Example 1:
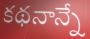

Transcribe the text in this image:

కథనాన్నే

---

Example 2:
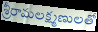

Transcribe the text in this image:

శ్రీరామలక్ష్మణులతో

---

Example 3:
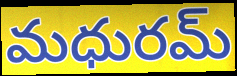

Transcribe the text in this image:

మధురమ్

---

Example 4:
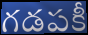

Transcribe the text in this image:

గడపకీ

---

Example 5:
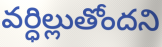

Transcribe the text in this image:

వర్ధిల్లుతోందని